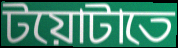
টয়োটাতে